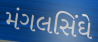
મંગલસિંઘે